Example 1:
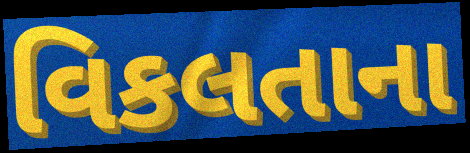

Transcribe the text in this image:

વિકલતાના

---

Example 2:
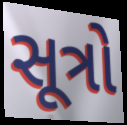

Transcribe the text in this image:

સૂત્રો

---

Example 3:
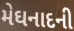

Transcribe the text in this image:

મેઘનાદની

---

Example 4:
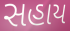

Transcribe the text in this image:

સહાય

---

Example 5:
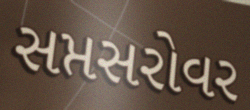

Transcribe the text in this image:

સપ્તસરોવર